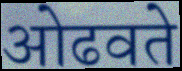
ओढवते